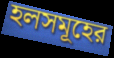
হলসমূহের